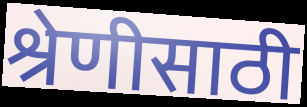
श्रेणीसाठी